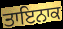
ਤਾਇਨਾਕ